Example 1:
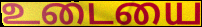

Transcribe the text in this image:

உடையை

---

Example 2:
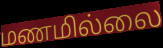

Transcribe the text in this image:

மணமில்லை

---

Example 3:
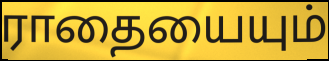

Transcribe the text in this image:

ராதையையும்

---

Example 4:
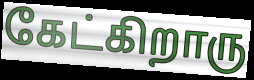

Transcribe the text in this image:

கேட்கிறாரு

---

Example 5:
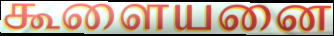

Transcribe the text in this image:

கூளையனை